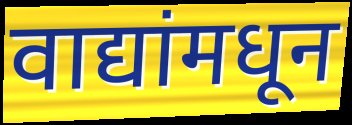
वाद्यांमधून